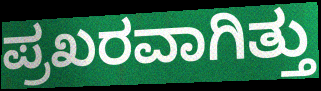
ಪ್ರಖರವಾಗಿತ್ತು